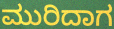
ಮುರಿದಾಗ